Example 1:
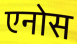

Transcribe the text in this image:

एनोस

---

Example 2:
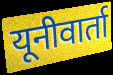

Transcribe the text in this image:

यूनीवार्ता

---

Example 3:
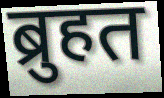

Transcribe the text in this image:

ब्रुहत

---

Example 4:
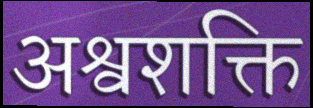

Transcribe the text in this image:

अश्वशक्ति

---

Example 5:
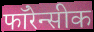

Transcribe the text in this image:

फॉरेन्सीक